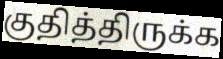
குதித்திருக்க